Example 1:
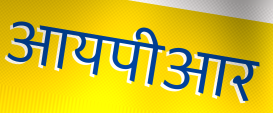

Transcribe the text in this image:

आयपीआर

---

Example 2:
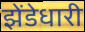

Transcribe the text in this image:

झेंडेधारी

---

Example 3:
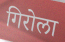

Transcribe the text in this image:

गिरोला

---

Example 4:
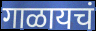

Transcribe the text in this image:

गाळायचं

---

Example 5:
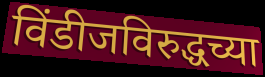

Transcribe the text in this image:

विंडीजविरुद्धच्या